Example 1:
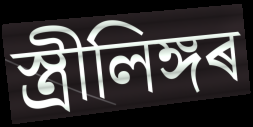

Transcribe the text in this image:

স্ত্ৰীলিঙ্গৰ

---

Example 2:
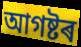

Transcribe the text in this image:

আগষ্টৰ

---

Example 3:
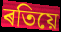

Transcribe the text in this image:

ৰতিয়ে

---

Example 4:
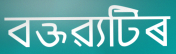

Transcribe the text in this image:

বক্তৱ্যটিৰ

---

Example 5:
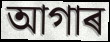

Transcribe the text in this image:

আগাৰ